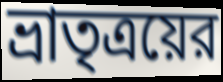
ভ্রাতৃত্রয়ের